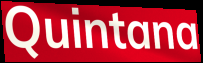
Quintana